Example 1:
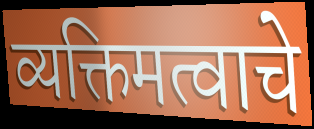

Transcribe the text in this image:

व्यक्तिमत्वाचे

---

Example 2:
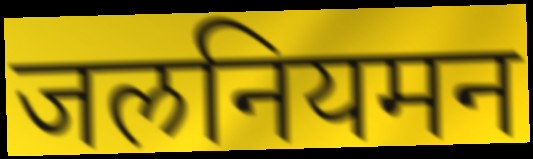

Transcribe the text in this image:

जलनियमन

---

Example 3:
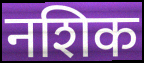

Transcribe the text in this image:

नशिक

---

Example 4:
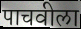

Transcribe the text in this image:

पाचवीला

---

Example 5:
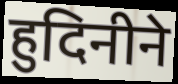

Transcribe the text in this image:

हुदिनीने